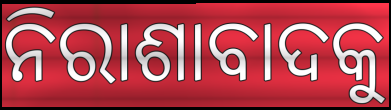
ନିରାଶାବାଦକୁ